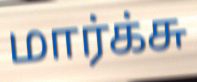
மார்க்சு